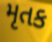
મૃતક